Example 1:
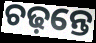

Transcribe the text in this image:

ଚଢ଼ନ୍ତେ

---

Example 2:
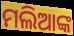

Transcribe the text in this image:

ମଲିଆଙ୍କ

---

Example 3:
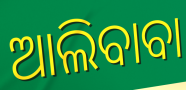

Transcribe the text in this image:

ଆଲିବାବା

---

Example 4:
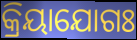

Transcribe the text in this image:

କ୍ରିୟାଯୋଗଃ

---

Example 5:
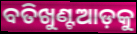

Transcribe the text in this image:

ବତିଖୁଣ୍ଟଆଡ଼କୁ